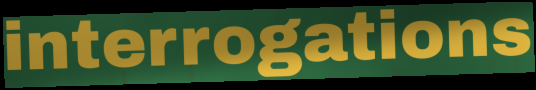
interrogations